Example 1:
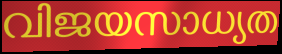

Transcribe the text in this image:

വിജയസാധ്യത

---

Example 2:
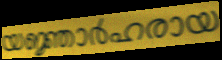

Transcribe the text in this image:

യജ്ഞാർഹരായ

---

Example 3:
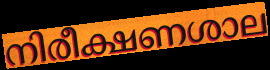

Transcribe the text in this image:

നിരീക്ഷണശാല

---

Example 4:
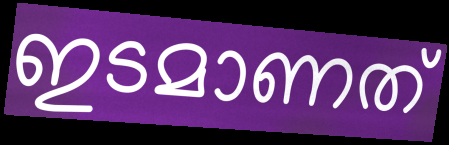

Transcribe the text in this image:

ഇടമാണത്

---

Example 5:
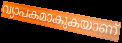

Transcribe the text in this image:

വ്യാപകമാകുകയാണ്